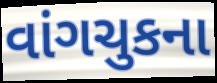
વાંગચુકના